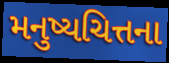
મનુષ્યચિત્તના